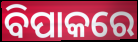
ବିପାକରେ